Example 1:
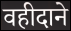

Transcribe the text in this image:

वहीदाने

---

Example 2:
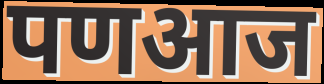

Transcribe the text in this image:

पणआज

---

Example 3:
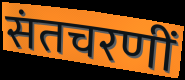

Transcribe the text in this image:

संतचरणीं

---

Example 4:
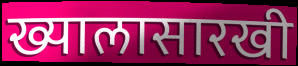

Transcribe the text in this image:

ख्यालासारखी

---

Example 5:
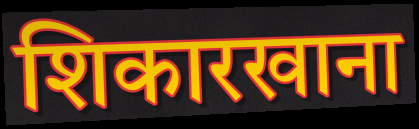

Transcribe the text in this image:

शिकारखाना